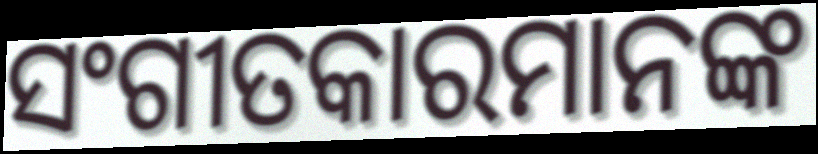
ସଂଗୀତକାରମାନଙ୍କ